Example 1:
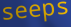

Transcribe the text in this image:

seeps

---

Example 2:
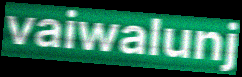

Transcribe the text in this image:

vaiwalunj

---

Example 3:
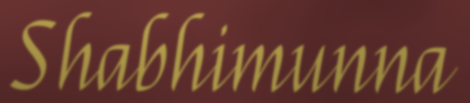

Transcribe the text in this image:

Shabhimunna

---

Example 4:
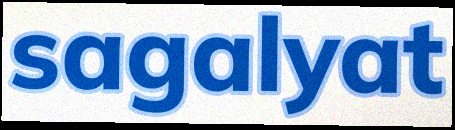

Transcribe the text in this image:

sagalyat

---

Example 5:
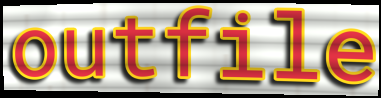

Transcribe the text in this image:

outfile